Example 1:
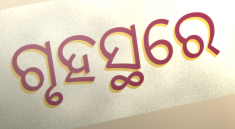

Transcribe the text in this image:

ଗୃହସ୍ଥରେ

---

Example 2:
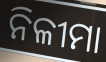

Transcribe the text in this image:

ନିଳୀମା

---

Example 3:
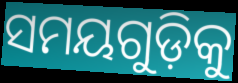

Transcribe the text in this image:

ସମୟଗୁଡ଼ିକୁ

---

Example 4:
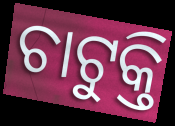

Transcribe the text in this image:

ଚାଟୁକ୍ତି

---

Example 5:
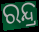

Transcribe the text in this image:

ରନ୍ଦ୍ର